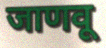
जाणवू